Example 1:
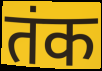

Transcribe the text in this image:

तंक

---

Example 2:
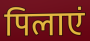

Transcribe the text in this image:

पिलाएं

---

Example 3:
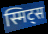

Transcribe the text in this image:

स्मिट्स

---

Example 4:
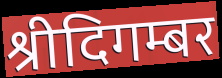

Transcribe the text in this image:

श्रीदिगम्बर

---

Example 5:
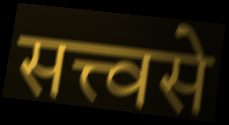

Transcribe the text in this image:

सत्त्वसे